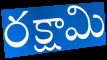
రక్షామి